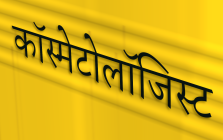
कॉस्मेटोलॉजिस्ट